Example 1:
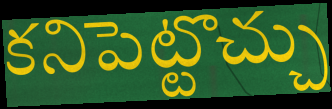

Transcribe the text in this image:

కనిపెట్టొచ్చు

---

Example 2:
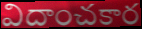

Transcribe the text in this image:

విదాంచకార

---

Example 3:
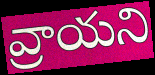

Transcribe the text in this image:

వ్రాయని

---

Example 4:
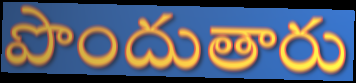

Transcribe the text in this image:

పొందుతారు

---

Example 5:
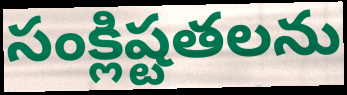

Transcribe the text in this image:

సంక్లిష్టతలను